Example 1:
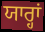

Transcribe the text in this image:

ਯਾਰ੍ਹਾਂ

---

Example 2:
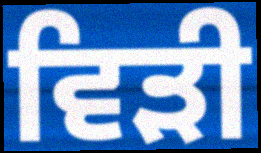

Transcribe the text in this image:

ਵਿੜੀ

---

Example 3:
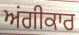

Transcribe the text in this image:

ਅਂਗੀਕਾਰ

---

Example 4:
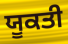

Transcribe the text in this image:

ਯੂਕਤੀ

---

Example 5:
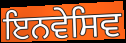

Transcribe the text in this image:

ਇਨਵੇਸਿਵ